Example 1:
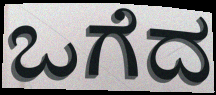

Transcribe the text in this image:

ಒಗೆದ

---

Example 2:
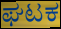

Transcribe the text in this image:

ಘಟಕ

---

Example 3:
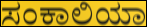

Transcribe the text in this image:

ಸಂಕಾಲಿಯಾ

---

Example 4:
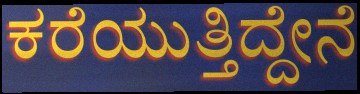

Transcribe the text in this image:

ಕರೆಯುತ್ತಿದ್ದೇನೆ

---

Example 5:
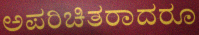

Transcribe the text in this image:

ಅಪರಿಚಿತರಾದರೂ